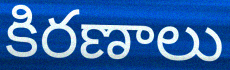
కిరణాలు